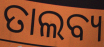
ତାଲବ୍ୟ